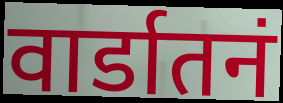
वार्डातनं